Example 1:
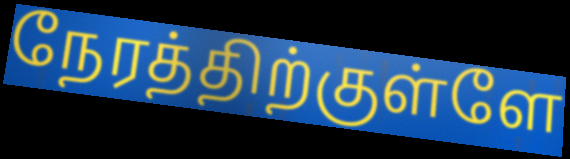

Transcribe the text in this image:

நேரத்திற்குள்ளே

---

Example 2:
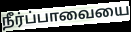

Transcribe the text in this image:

நீர்ப்பாவையை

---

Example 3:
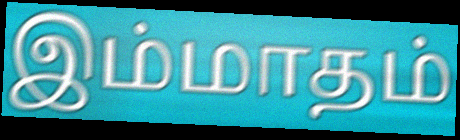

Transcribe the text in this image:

இம்மாதம்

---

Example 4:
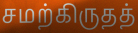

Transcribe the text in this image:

சமற்கிருதத்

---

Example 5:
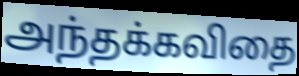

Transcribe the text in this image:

அந்தக்கவிதை